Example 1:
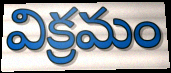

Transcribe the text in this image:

విక్రమం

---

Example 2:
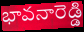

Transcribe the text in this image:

భావనారెడ్డి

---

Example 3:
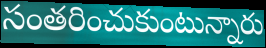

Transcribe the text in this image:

సంతరించుకుంటున్నారు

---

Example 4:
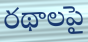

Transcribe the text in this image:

రథాలపై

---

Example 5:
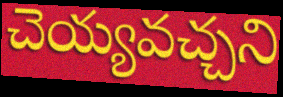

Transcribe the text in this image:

చెయ్యవచ్చని